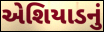
એશિયાડનું